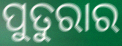
ପୁତୁରାର